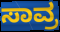
ಸಾವ್ರ